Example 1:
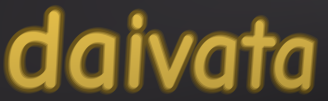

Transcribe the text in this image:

daivata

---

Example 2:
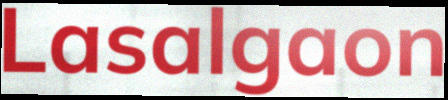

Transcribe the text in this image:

Lasalgaon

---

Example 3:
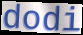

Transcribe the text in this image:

dodi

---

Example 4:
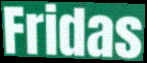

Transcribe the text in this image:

Fridas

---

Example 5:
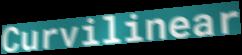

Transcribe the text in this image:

Curvilinear